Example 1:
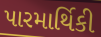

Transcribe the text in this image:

પારમાર્થિકી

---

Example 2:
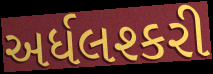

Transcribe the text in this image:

અર્ધલશ્કરી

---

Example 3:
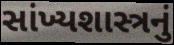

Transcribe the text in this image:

સાંખ્યશાસ્ત્રનું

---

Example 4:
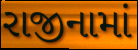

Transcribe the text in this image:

રાજીનામાં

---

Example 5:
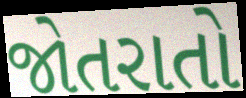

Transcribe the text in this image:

જોતરાતો